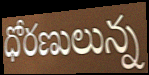
ధోరణులున్న